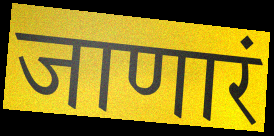
जाणारं